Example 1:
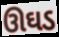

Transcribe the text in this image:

ઊઘડ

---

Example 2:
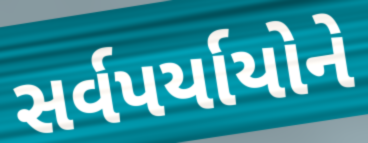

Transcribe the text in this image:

સર્વપર્યાયોને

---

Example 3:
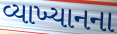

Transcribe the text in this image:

વ્યાખ્યાનના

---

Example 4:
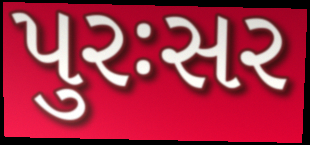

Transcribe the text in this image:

પુરઃસર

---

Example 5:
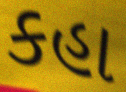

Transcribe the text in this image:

કહા